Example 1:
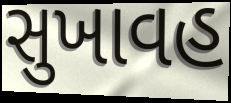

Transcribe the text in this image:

સુખાવહ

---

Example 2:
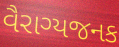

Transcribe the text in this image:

વૈરાગ્યજનક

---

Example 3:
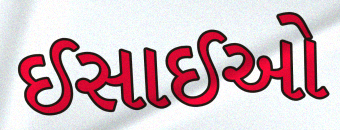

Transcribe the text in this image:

ઈસાઈઓ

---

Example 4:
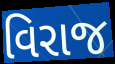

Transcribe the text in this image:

વિરાજ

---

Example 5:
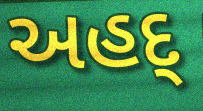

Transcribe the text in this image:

અહદ્